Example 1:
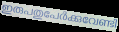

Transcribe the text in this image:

ഇരുപതുപേർക്കുവേണ്ടി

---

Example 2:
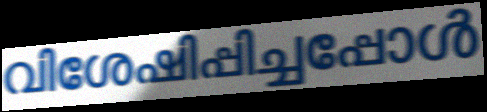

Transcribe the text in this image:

വിശേഷിപ്പിച്ചപ്പോൾ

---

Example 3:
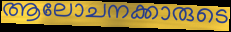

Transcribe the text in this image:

ആലോചനക്കാരുടെ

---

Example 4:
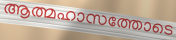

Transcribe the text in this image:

ആത്മഹാസത്തോടെ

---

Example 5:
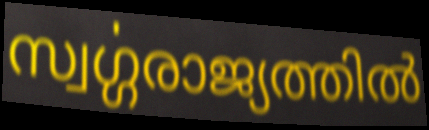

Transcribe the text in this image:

സ്വൎഗ്ഗരാജ്യത്തിൽ